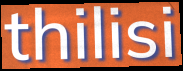
thilisi